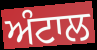
ਅੰਟਾਲ